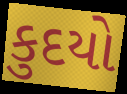
કુદયો